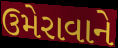
ઉમેરાવાને